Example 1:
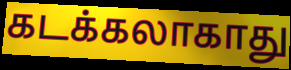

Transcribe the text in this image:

கடக்கலாகாது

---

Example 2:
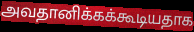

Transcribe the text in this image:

அவதானிக்கக்கூடியதாக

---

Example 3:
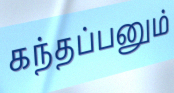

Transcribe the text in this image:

கந்தப்பனும்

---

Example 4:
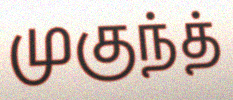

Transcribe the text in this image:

முகுந்த்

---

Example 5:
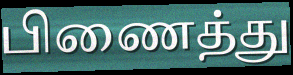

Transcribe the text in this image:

பிணைத்து